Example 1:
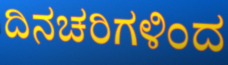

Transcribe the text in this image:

ದಿನಚರಿಗಳಿಂದ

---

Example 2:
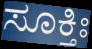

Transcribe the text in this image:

ಸೂಕ್ತಿಃ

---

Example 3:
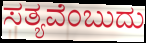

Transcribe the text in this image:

ಸತ್ಯವೆಂಬುದು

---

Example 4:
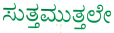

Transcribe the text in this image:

ಸುತ್ತಮುತ್ತಲೇ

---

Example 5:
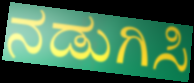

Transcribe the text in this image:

ನಡುಗಿಸಿ